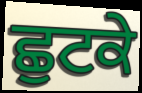
ਛੁਟਕੇ